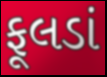
ફૂલડાં